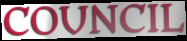
COUNCIL